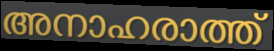
അനാഹരാത്ത്